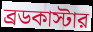
ব্রডকাস্টার